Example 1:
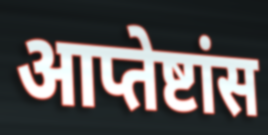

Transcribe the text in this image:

आप्तेष्टांस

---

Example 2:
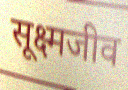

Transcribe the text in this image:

सूक्ष्मजीव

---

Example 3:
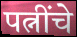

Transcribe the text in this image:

पत्नींचे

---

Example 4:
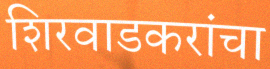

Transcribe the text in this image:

शिरवाडकरांचा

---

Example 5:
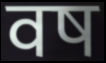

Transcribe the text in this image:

वष